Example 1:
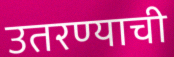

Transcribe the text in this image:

उतरण्याची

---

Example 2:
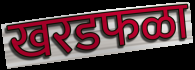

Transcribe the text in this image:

खरडफळा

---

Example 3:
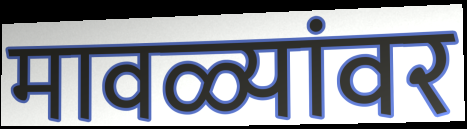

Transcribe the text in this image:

मावळ्यांवर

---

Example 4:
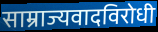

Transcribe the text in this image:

साम्राज्यवादविरोधी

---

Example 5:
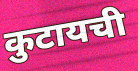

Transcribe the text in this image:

कुटायची